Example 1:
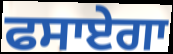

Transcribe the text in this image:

ਫਸਾਏਗਾ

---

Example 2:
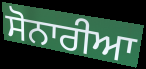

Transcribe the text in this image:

ਸੋਨਾਰੀਆ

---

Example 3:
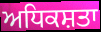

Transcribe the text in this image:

ਅਧਿਕਸ਼ਤਾ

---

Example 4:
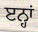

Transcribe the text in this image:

ੲਨ੍ਹਾਂ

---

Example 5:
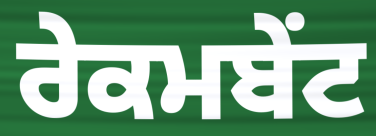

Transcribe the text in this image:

ਰੇਕਮਬੇਂਟ